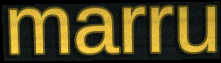
marru